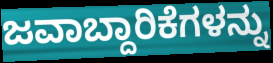
ಜವಾಬ್ದಾರಿಕೆಗಳನ್ನು